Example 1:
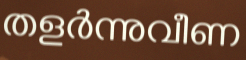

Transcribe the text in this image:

തളർന്നുവീണ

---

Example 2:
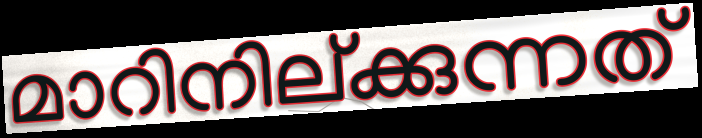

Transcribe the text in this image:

മാറിനില്ക്കുന്നത്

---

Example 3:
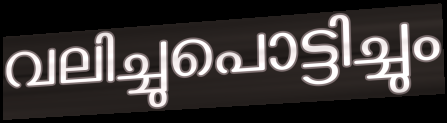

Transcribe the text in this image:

വലിച്ചുപൊട്ടിച്ചും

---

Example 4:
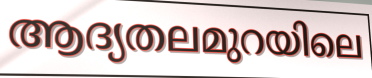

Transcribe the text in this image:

ആദ്യതലമുറയിലെ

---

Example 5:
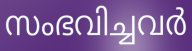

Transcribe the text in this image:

സംഭവിച്ചവർ